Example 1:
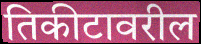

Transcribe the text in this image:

तिकीटावरील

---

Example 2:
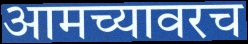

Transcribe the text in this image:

आमच्यावरच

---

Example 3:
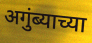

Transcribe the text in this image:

अगुंब्याच्या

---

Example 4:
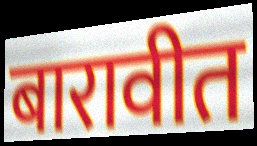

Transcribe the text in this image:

बारावीत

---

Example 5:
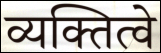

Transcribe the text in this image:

व्यक्तित्वे